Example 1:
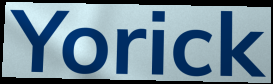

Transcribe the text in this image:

Yorick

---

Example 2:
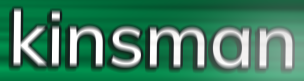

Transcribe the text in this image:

kinsman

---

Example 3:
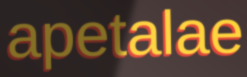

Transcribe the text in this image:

apetalae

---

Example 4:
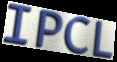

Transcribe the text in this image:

IPCL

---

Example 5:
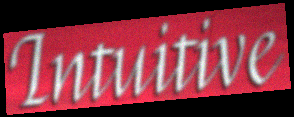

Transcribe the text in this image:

Intuitive